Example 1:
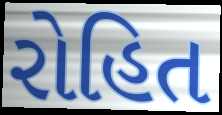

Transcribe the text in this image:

રોહિત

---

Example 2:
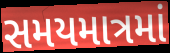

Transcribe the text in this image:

સમયમાત્રમાં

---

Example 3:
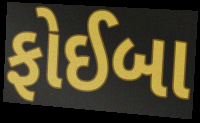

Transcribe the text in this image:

ફોઈબા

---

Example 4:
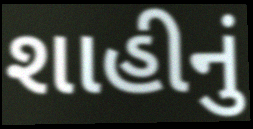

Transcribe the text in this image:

શાહીનું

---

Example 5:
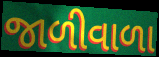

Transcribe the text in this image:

જાળીવાળા